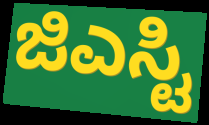
ಜಿಎಸ್ಟಿ